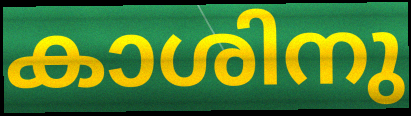
കാശിനു